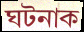
ঘটনাক